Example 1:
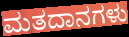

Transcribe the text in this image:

ಮತದಾನಗಳು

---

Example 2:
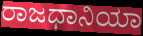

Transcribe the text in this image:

ರಾಜಧಾನಿಯಾ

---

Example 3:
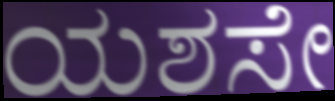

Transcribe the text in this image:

ಯಶಸೇ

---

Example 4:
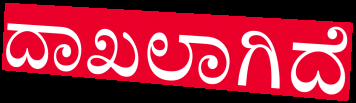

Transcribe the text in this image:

ದಾಖಲಾಗಿದೆ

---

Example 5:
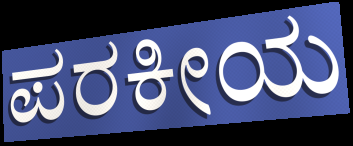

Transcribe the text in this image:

ಪರಕೀಯ